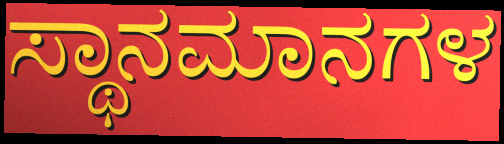
ಸ್ಥಾನಮಾನಗಳ